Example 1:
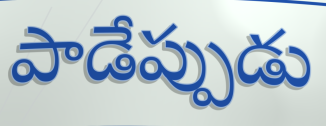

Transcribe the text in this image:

పాడేప్పుడు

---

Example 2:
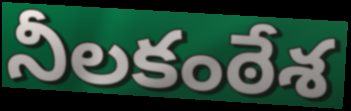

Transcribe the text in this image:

నీలకంఠేశ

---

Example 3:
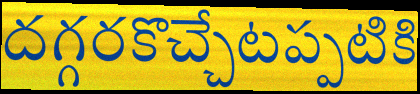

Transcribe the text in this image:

దగ్గరకొచ్చేటప్పటికి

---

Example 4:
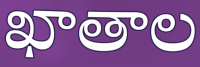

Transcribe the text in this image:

ఖాతాల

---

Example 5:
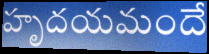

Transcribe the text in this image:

హృదయమందే